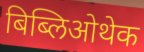
बिब्लिओथेक